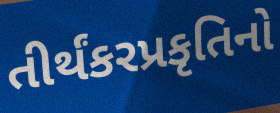
તીર્થંકરપ્રકૃતિનો